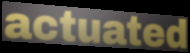
actuated